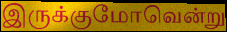
இருக்குமோவென்று